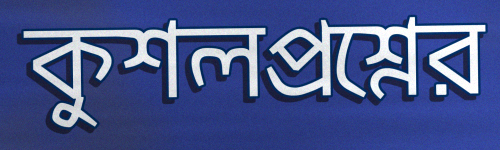
কুশলপ্রশ্নের